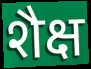
शैक्ष